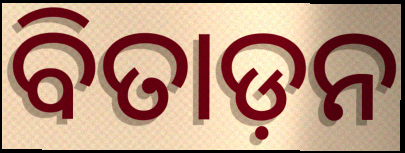
ବିତାଡ଼ନ